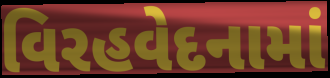
વિરહવેદનામાં